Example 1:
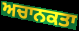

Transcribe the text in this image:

ਅਚਾਨਕਤਾ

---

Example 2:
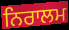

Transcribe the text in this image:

ਨਿਰਾਲਮ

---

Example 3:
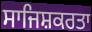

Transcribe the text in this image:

ਸਾਜਿਸ਼ਕਰਤਾ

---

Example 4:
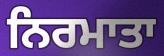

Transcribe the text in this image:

ਨਿਰਮਾਤਾ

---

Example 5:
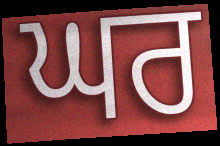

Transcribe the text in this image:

ਘਰ